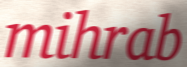
mihrab